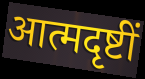
आत्मदृष्टीं